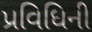
પ્રવિધિની